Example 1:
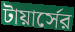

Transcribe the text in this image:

টায়ার্সের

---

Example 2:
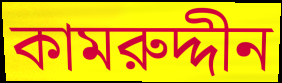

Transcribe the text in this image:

কামরুদ্দীন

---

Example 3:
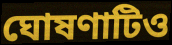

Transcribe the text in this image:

ঘোষণাটিও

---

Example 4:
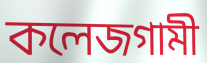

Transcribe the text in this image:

কলেজগামী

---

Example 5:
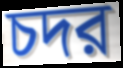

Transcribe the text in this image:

চদর